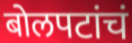
बोलपटांचं